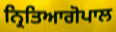
ਨ੍ਰਿਤਿਆਗੋਪਾਲ